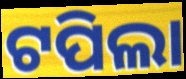
ଟପିଲା